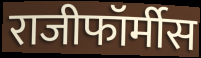
राजीफॉर्मीस